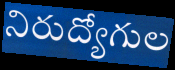
నిరుద్యోగుల